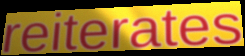
reiterates